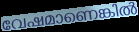
വേഷമാണെങ്കിൽ